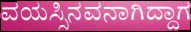
ವಯಸ್ಸಿನವನಾಗಿದ್ದಾಗ